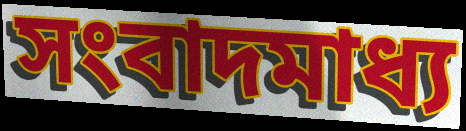
সংবাদমাধ্য